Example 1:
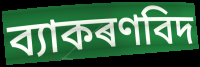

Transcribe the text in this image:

ব্যাকৰণবিদ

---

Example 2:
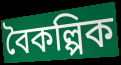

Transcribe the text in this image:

বৈকল্পিক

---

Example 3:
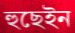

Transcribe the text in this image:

হুছেইন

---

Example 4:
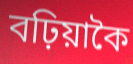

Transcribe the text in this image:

বঢ়িয়াকৈ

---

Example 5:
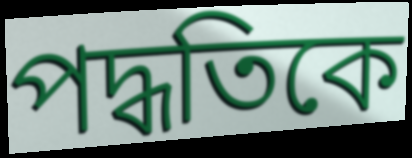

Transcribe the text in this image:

পদ্ধতিকে